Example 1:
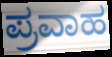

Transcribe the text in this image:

ಪ್ರವಾಹ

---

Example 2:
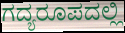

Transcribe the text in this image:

ಗದ್ಯರೂಪದಲ್ಲಿ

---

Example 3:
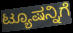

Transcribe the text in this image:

ಟ್ಯೂಷನ್ನಿಗೆ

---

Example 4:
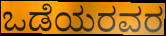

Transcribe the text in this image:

ಒಡೆಯರವರ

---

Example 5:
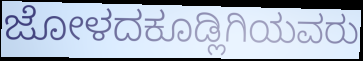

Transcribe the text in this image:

ಜೋಳದಕೂಡ್ಲಿಗಿಯವರು